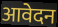
आवेदन